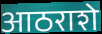
आठराशे